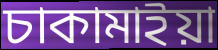
চাকামাইয়া